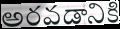
అరవడానికి